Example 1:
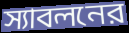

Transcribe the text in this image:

স্যাবলনের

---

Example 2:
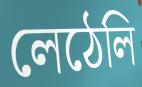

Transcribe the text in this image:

লেঠেলি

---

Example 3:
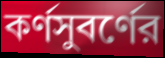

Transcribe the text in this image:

কর্ণসুবর্ণের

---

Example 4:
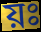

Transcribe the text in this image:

য়ঃ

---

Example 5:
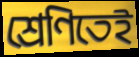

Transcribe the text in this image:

শ্রেণিতেই